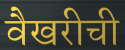
वैखरीची